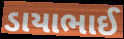
ડાયાભાઈ